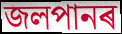
জলপানৰ